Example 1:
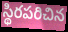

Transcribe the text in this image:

స్థిరపరిచిన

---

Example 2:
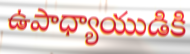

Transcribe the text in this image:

ఉపాధ్యాయుడికి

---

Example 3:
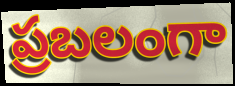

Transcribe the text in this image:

ప్రబలంగా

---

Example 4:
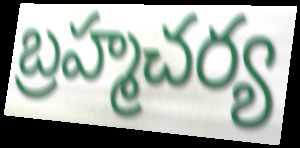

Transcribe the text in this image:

బ్రహ్మచర్య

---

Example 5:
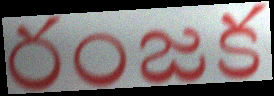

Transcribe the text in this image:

రంజక